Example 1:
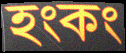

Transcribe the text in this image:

হংকং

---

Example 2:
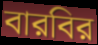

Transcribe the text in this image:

বারবির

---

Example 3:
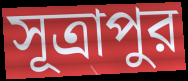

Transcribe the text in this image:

সূত্রাপুর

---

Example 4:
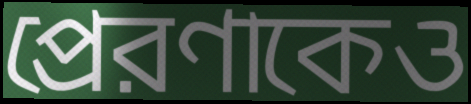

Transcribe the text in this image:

প্রেরণাকেও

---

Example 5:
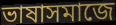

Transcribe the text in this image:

ভাষাসমাজে